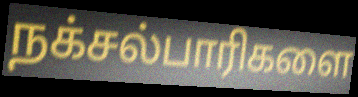
நக்சல்பாரிகளை